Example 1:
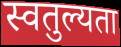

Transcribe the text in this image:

स्वतुल्यता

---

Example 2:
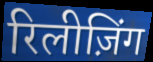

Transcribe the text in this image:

रिलीज़िंग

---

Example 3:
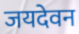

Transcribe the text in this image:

जयदेवन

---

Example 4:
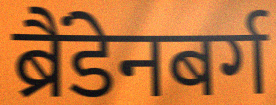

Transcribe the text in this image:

ब्रैंडेनबर्ग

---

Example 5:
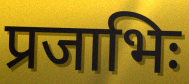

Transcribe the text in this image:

प्रजाभिः